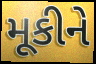
મૂકીને